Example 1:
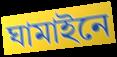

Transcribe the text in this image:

ঘামাইনে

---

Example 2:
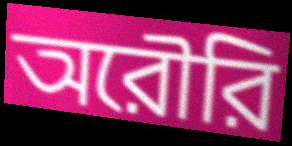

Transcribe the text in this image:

অরৌরি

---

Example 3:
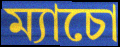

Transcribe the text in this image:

ম্যাচো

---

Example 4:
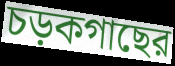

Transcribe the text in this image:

চড়কগাছের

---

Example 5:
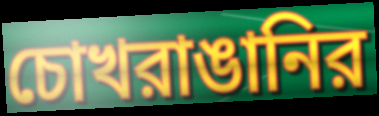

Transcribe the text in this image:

চোখরাঙানির